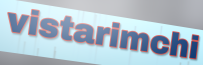
vistarimchi